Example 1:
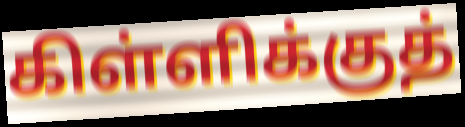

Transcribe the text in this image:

கிள்ளிக்குத்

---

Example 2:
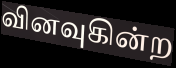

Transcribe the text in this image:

வினவுகின்ற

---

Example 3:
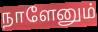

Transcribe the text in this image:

நாளேனும்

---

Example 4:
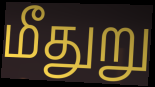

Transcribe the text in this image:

மீதுறு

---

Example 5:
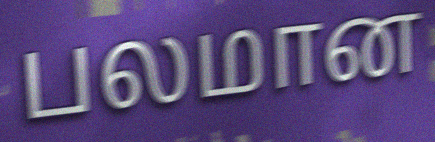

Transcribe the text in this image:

பலமான